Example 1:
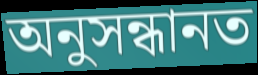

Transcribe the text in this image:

অনুসন্ধানত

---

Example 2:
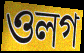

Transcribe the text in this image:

ওলগ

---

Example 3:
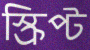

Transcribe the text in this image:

স্ক্ৰিপ্ট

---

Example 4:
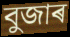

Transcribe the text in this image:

বুজাৰ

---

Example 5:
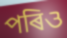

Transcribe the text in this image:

পৰিও